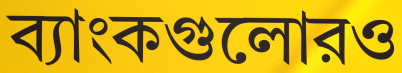
ব্যাংকগুলোরও